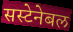
सस्टेनेबल